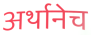
अर्थानेच